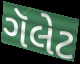
ગૅલેટ